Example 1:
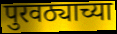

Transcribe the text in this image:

पुरवठ्याच्या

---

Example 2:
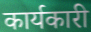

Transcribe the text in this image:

कार्यकारी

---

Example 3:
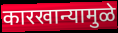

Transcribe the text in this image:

कारखान्यामुळे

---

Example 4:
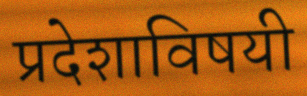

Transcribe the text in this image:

प्रदेशाविषयी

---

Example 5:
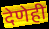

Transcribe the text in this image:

देणेही